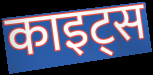
काइट्स